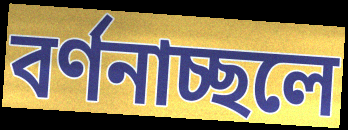
বর্ণনাচ্ছলে